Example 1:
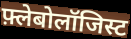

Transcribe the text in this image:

फ़्लेबोलॉजिस्ट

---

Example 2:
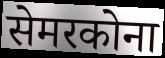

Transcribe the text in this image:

सेमरकोना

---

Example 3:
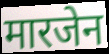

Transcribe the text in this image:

मारजेन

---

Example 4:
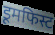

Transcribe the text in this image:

डूमफिस्ट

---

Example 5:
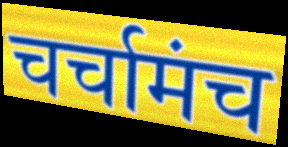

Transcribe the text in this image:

चर्चामंच